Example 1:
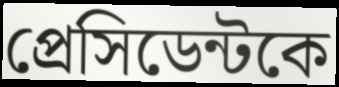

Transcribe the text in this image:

প্রেসিডেন্টকে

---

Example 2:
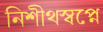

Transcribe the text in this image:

নিশীথস্বপ্নে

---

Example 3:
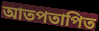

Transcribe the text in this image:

আতপতাপিত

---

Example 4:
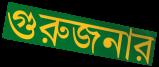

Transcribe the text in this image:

গুরুজনার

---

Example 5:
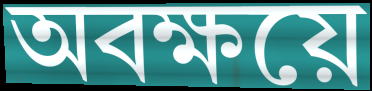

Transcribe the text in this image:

অবক্ষয়ে